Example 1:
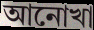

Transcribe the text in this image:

আনোখা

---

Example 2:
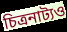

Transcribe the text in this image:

চিত্রনাট্যও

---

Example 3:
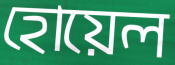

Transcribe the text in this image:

হোয়েল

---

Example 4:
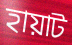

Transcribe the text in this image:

হায়াট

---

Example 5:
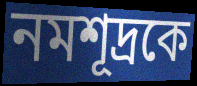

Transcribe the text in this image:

নমশূদ্রকে